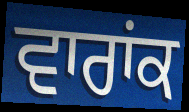
ਵਾਰਾਂਕ